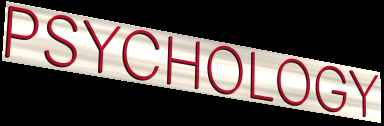
PSYCHOLOGY